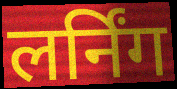
लर्निंग